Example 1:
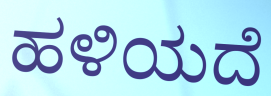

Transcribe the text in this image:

ಹಳಿಯದೆ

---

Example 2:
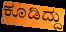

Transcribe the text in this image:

ಕೂಡಿದ್ದು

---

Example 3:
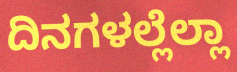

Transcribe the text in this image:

ದಿನಗಳಲ್ಲೆಲ್ಲಾ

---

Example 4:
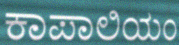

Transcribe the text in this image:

ಕಾಪಾಲಿಯಂ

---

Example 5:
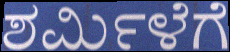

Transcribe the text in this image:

ಶರ್ಮಿಳೆಗೆ